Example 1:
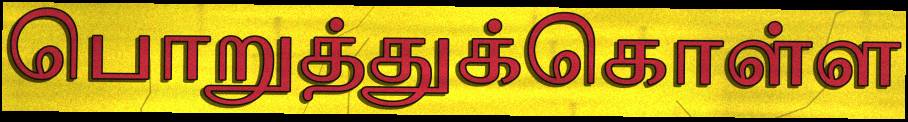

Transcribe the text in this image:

பொறுத்துக்கொள்ள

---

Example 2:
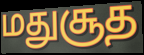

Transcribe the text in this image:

மதுசூத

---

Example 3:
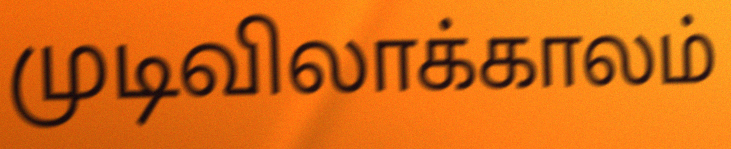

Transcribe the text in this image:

முடிவிலாக்காலம்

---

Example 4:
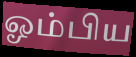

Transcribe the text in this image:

ஓம்பிய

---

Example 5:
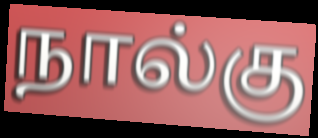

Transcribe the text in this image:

நால்கு